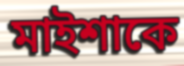
মাইশাকে